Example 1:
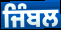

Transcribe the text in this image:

ਜਿੰਬਲ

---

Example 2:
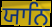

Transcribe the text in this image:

ਯਾਨਿ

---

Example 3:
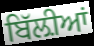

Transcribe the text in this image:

ਬਿੱਲ਼ੀਆਂ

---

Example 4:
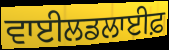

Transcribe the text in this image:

ਵਾਈਲਡਲਾਈਫ਼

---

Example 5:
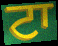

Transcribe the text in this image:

ਟਾ